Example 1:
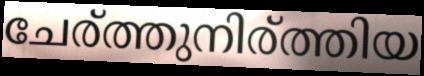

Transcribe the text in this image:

ചേര്ത്തുനിര്ത്തിയ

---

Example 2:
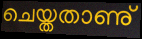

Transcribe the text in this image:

ചെയ്തതാണു്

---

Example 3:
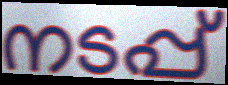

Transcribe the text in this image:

നടപ്പ്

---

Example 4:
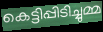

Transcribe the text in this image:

കെട്ടിപ്പിടിച്ചുമ്മ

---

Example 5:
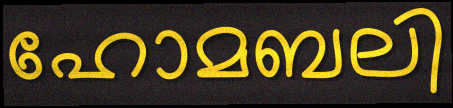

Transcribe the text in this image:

ഹോമബലി